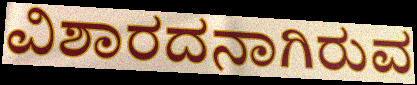
ವಿಶಾರದನಾಗಿರುವ